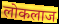
लोकलाज